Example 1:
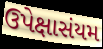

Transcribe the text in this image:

ઉપેક્ષાસંયમ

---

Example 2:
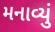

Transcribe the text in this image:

મનાવ્યું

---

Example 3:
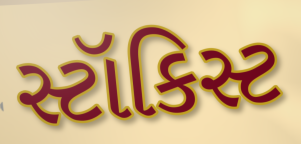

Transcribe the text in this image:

સ્ટૉકિસ્ટ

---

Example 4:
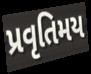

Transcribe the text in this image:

પ્રવૃતિમય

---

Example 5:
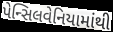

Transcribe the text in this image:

પેન્સિલવેનિયામાંથી